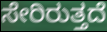
ಸೇರಿರುತ್ತದೆ